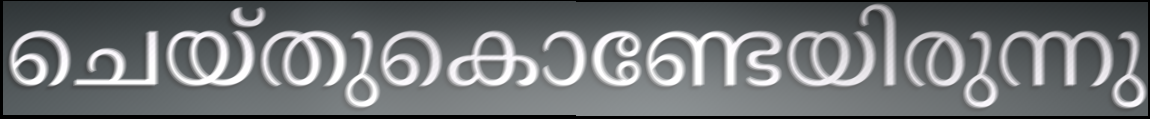
ചെയ്തുകൊണ്ടേയിരുന്നു